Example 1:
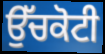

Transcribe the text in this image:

ਉੱਚਕੋਟੀ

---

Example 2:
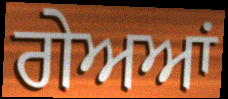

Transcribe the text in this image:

ਗੇਅਆਂ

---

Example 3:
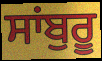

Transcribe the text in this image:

ਸਾਂਬੁਰੂ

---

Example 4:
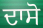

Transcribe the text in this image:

ਦਾਸੋ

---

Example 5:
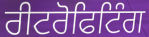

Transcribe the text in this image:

ਰੀਟਰੋਫਿਟਿੰਗ